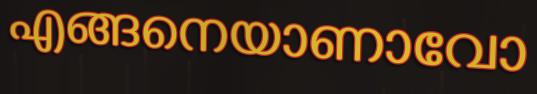
എങ്ങനെയാണാവോ